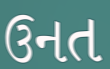
ઉનત